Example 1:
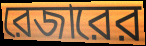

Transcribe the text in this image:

রেজারের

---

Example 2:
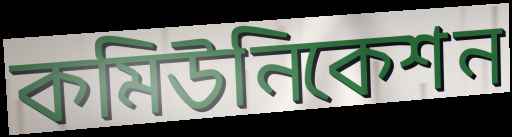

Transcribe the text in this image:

কমিউনিকেশন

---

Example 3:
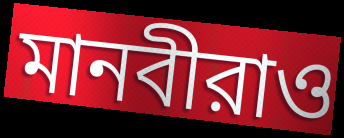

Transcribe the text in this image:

মানবীরাও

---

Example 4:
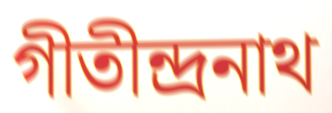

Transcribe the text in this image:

গীতীন্দ্রনাথ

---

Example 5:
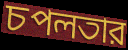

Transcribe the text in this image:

চপলতার